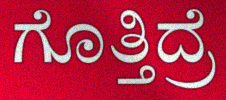
ಗೊತ್ತಿದ್ರೆ